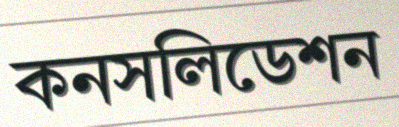
কনসলিডেশন